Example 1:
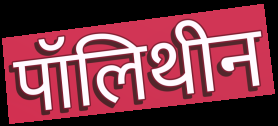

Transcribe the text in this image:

पॉलिथीन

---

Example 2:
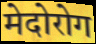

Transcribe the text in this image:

मेदोरोग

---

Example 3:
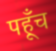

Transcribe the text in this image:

पहूँच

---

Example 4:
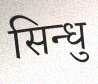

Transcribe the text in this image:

सिन्धु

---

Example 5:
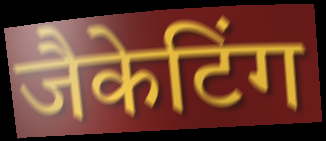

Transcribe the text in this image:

जैकेटिंग